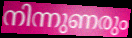
നിന്നുണരും